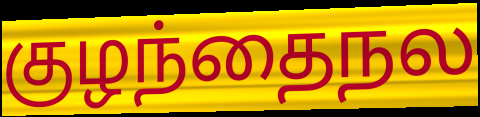
குழந்தைநல